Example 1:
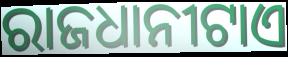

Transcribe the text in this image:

ରାଜଧାନୀଟାଏ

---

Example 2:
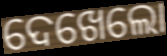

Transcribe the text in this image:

ଦେଖେଲୋ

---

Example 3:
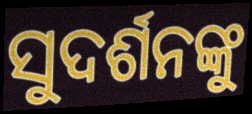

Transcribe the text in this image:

ସୁଦର୍ଶନଙ୍କୁ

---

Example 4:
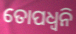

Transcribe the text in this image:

ତୋପଧ୍ୱନି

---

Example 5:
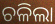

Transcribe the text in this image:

ଚଳିଲା